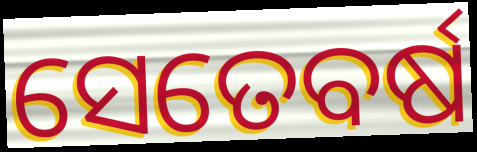
ସେତେବର୍ଷ